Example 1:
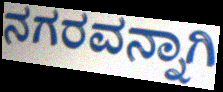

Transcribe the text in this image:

ನಗರವನ್ನಾಗಿ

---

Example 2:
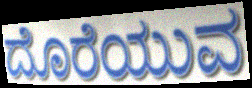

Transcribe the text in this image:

ದೊರೆಯುವ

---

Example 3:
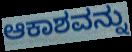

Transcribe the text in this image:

ಆಕಾಶವನ್ನು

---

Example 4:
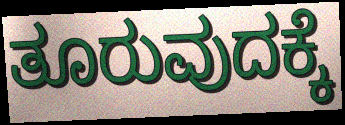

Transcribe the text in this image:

ತೂರುವುದಕ್ಕೆ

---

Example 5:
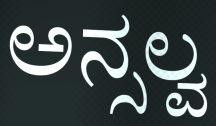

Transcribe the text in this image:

ಅನ್ಸಲ್ವ